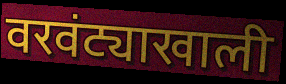
वरवंट्याखाली